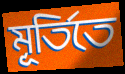
মূর্তিতে